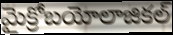
మైక్రోబయోలాజికల్